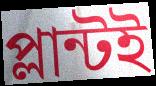
প্লান্টই